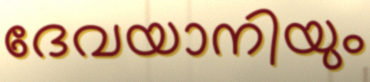
ദേവയാനിയും